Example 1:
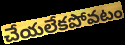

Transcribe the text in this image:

చేయలేకపోవటం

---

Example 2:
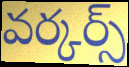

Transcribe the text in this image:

వర్కర్స్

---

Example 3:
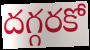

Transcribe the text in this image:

దగ్గరకో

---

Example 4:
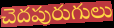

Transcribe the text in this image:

చెదపురుగులు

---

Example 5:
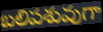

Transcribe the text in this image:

బలిపశువుగా